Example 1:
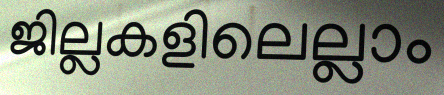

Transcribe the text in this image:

ജില്ലകളിലെല്ലാം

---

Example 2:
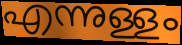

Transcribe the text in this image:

എന്നുള്ളം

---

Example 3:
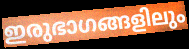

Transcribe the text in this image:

ഇരുഭാഗങ്ങളിലും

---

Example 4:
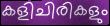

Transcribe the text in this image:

കളിചിരികളും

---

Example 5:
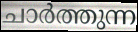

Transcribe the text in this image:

ചാർത്തുന്ന